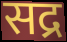
सद्र